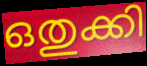
ഒതുക്കി